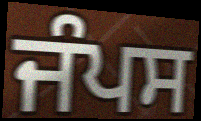
ਜੰਪਸ